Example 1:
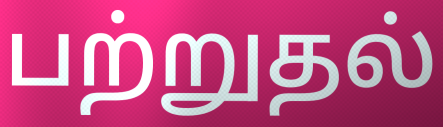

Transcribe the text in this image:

பற்றுதல்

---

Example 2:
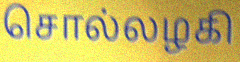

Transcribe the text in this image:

சொல்லழகி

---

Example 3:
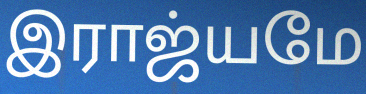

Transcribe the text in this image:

இராஜ்யமே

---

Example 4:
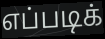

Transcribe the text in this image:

எப்படிக்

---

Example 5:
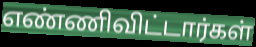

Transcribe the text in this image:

எண்ணிவிட்டார்கள்